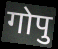
गोपु